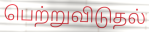
பெற்றுவிடுதல்